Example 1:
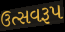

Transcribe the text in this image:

ઉત્સવરૂપ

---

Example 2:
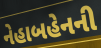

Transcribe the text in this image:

નેહાબહેનની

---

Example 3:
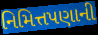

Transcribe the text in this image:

નિમિત્તપણાની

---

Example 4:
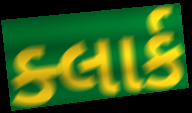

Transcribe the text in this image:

ક્લાર્ક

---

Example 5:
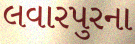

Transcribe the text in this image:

લવારપુરના